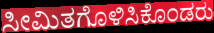
ಸೀಮಿತಗೊಳಿಸಿಕೊಂಡರು